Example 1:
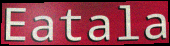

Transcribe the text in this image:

Eatala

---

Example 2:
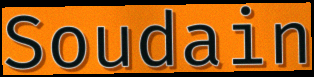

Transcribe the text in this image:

Soudain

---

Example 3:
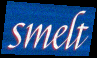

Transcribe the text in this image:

smelt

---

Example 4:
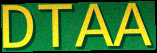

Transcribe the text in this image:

DTAA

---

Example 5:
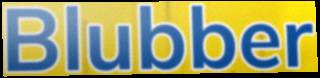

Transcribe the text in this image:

Blubber